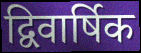
द्विवार्षिक